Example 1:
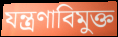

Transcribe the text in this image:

যন্ত্রণাবিমুক্ত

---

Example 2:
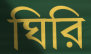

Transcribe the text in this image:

ঘিরি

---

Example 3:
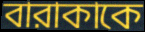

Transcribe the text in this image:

বারাকাকে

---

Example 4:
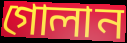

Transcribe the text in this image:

গোলান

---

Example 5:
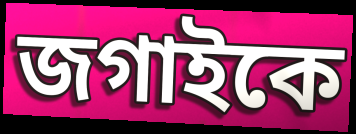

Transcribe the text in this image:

জগাইকে